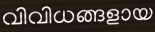
വിവിധങ്ങളായ